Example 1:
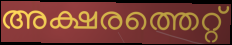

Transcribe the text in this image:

അക്ഷരത്തെറ്റ്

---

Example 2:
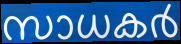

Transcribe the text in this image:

സാധകർ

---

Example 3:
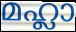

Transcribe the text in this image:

മഹ്ലാ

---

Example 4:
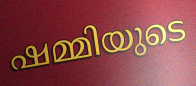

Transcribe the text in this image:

ഷമ്മിയുടെ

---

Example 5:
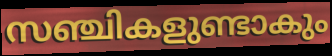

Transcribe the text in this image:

സഞ്ചികളുണ്ടാകും